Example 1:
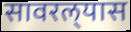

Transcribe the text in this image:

सावरल्यास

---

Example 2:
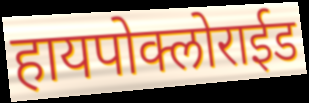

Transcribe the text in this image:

हायपोक्लोराईड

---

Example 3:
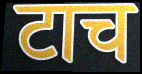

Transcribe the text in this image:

टाच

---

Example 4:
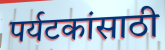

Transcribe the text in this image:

पर्यटकांसाठी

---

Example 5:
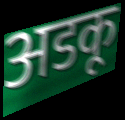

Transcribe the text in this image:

अडकू